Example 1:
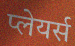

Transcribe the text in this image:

प्लेयर्स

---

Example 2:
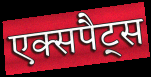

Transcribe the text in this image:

एक्सपैट्स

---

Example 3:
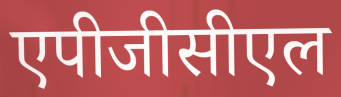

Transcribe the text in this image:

एपीजीसीएल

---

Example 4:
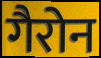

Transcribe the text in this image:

गैरोन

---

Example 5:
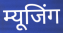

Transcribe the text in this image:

म्यूजिंग